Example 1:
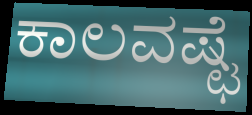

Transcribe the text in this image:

ಕಾಲವಷ್ಟೆ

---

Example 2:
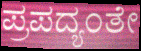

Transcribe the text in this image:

ಪ್ರಪದ್ಯಂತೇ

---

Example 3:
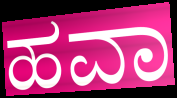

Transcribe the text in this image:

ಹವಾ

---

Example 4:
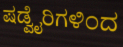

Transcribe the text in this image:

ಷಡ್ವೈರಿಗಳಿಂದ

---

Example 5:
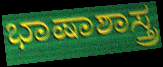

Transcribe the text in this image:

ಭಾಷಾಶಾಸ್ತ್ರ